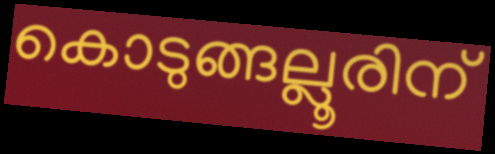
കൊടുങ്ങല്ലൂരിന്